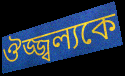
ঔজ্জ্বল্যকে